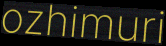
ozhimuri